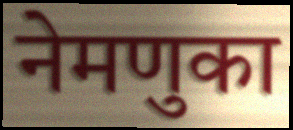
नेमणुका